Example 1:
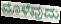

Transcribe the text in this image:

ಮೊಳೆವುದು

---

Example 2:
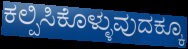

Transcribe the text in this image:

ಕಲ್ಪಿಸಿಕೊಳ್ಳುವುದಕ್ಕೂ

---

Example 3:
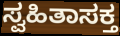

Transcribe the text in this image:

ಸ್ವಹಿತಾಸಕ್ತ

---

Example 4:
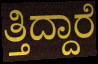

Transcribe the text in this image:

ತ್ತಿದ್ದಾರೆ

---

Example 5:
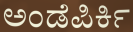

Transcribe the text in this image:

ಅಂಡೆಪಿರ್ಕಿ